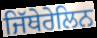
ਜਿੱਥੇਰੇਲਿਨ